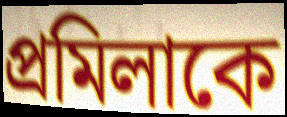
প্রমিলাকে